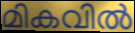
മികവിൽ